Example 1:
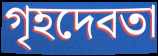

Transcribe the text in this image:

গৃহদেবতা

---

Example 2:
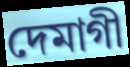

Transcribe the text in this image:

দেমাগী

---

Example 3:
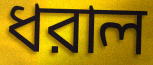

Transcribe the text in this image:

ধরাল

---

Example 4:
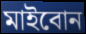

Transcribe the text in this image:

মাইবোন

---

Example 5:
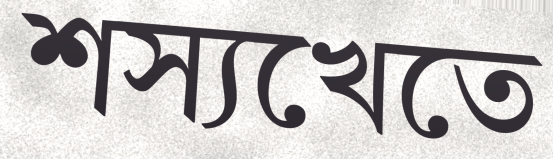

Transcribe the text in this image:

শস্যখেতে